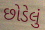
છોડેલું